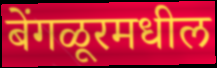
बेंगळूरमधील